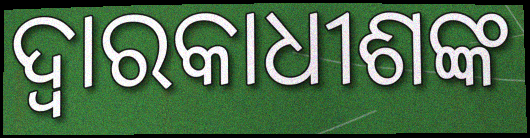
ଦ୍ୱାରକାଧୀଶଙ୍କ